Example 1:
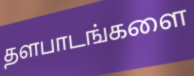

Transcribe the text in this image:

தளபாடங்களை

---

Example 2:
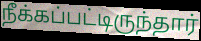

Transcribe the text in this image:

நீக்கப்பட்டிருந்தார்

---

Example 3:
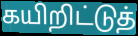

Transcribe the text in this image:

கயிறிட்டுத்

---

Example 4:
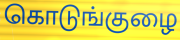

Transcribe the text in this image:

கொடுங்குழை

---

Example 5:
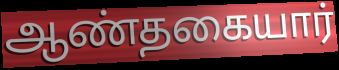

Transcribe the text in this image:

ஆண்தகையார்